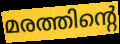
മരത്തിന്റെ